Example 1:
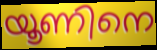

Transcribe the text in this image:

യൂണിനെ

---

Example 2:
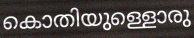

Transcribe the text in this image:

കൊതിയുള്ളൊരു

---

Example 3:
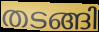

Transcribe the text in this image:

തടങ്ങി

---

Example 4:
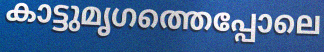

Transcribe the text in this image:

കാട്ടുമൃഗത്തെപ്പോലെ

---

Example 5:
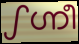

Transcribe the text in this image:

ഽഗ്നീ